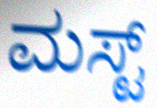
ಮಸ್ಟ್